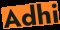
Adhi